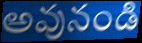
అవునండి